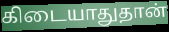
கிடையாதுதான்